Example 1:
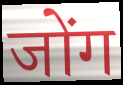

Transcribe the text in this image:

जोंग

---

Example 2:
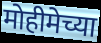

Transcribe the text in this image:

मोहीमेच्या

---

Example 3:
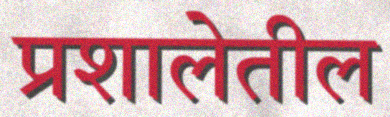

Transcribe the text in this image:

प्रशालेतील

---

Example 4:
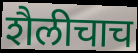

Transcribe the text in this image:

शैलीचाच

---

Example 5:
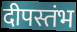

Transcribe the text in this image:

दीपस्तंभ